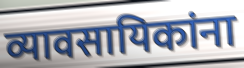
व्यावसायिकांना